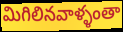
మిగిలినవాళ్ళంతా